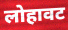
लोहावट